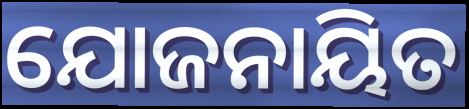
ଯୋଜନାୟିତ